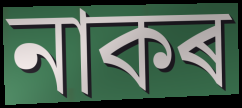
নাকৰ